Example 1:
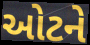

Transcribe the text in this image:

ઓટને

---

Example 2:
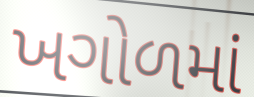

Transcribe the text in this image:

ખગોળમાં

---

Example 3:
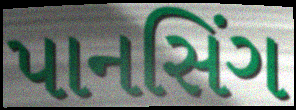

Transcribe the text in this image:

પાનસિંગ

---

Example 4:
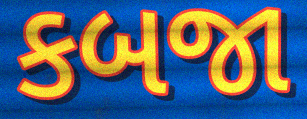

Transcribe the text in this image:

કબજા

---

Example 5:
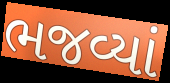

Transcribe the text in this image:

ભજવ્યાં